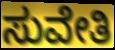
ಸುವೇತಿ